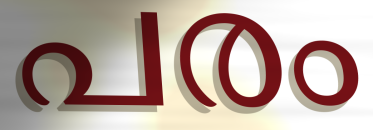
പരം